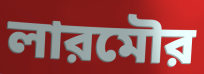
লারমৌর